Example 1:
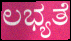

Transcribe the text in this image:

ಲಭ್ಯತೆ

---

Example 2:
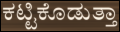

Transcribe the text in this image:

ಕಟ್ಟಿಕೊಡುತ್ತಾ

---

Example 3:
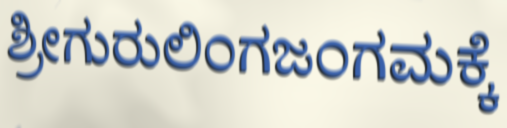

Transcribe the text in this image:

ಶ್ರೀಗುರುಲಿಂಗಜಂಗಮಕ್ಕೆ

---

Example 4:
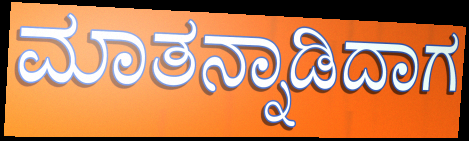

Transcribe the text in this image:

ಮಾತನ್ನಾಡಿದಾಗ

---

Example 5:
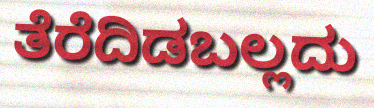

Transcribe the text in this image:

ತೆರೆದಿಡಬಲ್ಲದು